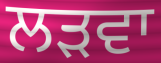
ਲੜਵਾ